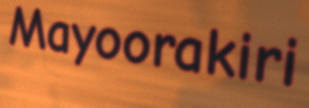
Mayoorakiri